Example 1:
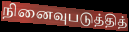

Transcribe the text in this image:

நினைவுபடுத்தித்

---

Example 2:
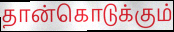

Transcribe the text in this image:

தான்கொடுக்கும்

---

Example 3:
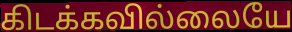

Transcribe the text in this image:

கிடக்கவில்லையே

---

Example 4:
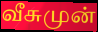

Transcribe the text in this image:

வீசுமுன்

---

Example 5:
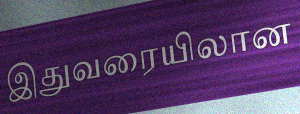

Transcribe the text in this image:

இதுவரையிலான